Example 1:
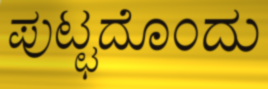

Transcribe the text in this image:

ಪುಟ್ಟದೊಂದು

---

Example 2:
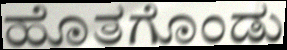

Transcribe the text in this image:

ಹೊತಗೊಂಡು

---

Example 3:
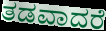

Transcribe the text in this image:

ತಡವಾದರೆ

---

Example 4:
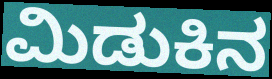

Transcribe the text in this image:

ಮಿಡುಕಿನ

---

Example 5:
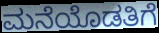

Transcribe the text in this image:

ಮನೆಯೊಡತಿಗೆ